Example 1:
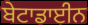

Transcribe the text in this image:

ਬੇਟਾਡਾਈਨ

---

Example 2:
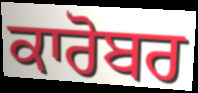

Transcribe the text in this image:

ਕਾਰੋਬਰ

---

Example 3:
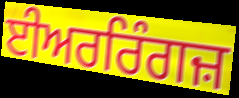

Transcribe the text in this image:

ਈਅਰਰਿੰਗਜ਼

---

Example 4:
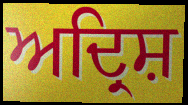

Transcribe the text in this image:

ਅਦ੍ਰਿਸ਼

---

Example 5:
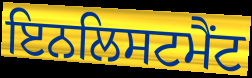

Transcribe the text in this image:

ਇਨਲਿਸਟਮੈਂਟ